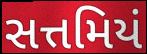
સત્તમિયં